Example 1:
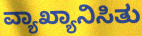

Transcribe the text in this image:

ವ್ಯಾಖ್ಯಾನಿಸಿತು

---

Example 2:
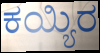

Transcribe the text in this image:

ಕಯ್ಯಿರ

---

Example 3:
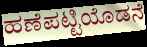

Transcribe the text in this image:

ಹಣೆಪಟ್ಟಿಯೊಡನೆ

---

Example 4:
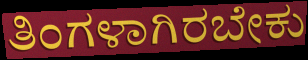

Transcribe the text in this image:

ತಿಂಗಳಾಗಿರಬೇಕು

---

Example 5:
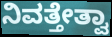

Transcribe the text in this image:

ನಿವತ್ತೇತ್ವಾ